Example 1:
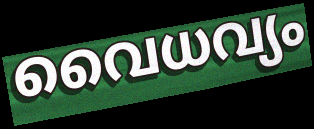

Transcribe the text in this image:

വൈധവ്യം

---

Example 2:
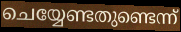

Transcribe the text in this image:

ചെയ്യേണ്ടതുണ്ടെന്ന്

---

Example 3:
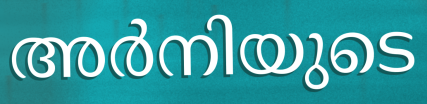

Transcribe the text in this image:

അർനിയുടെ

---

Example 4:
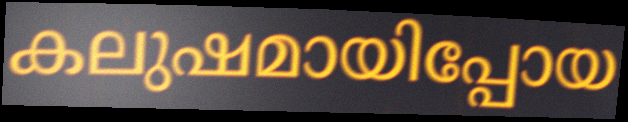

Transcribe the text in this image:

കലുഷമായിപ്പോയ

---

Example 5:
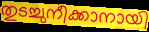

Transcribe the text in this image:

തുടച്ചുനീക്കാനായി